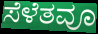
ಸೆಳೆತವೂ